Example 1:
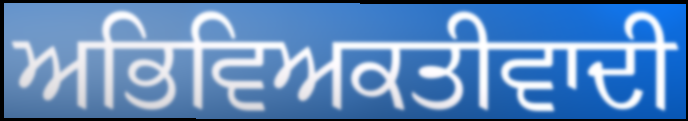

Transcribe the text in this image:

ਅਭਿਵਿਅਕਤੀਵਾਦੀ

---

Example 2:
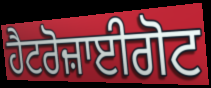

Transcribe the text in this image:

ਹੈਟਰੋਜ਼ਾਈਗੋਟ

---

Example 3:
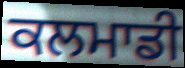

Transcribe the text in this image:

ਕਲਮਾਡੀ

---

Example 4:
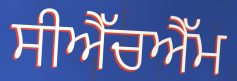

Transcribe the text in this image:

ਸੀਐੱਚਐੱਮ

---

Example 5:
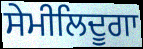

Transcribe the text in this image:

ਸੇਮੀਲਿਦੂਗਾ